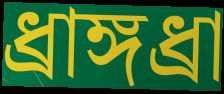
ধ্রাঙ্গধ্রা